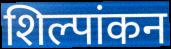
शिल्पांकन